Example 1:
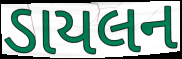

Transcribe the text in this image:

ડાયલન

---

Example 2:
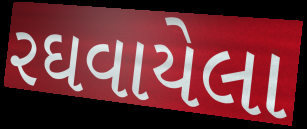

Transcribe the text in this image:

રઘવાયેલા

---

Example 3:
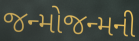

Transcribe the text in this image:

જન્મોજન્મની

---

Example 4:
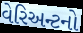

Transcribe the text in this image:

વેરિઅન્ટનો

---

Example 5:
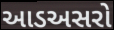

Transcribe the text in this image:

આડઅસરો